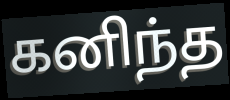
கனிந்த